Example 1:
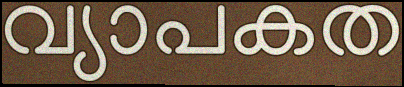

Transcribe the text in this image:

വ്യാപകത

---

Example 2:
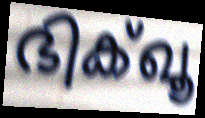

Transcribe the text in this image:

ഭിക്ഖൂ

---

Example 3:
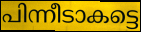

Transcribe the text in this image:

പിന്നീടാകട്ടെ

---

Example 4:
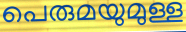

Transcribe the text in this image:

പെരുമയുമുള്ള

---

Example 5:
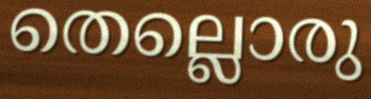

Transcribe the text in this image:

തെല്ലൊരു